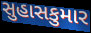
સુહાસકુમાર